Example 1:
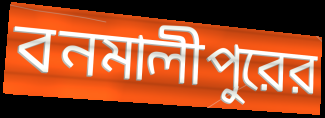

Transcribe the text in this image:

বনমালীপুরের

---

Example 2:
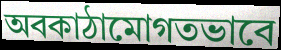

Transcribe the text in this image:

অবকাঠামোগতভাবে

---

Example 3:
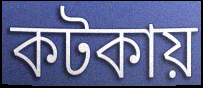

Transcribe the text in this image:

কটকায়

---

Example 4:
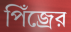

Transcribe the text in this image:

পিঁজ্রের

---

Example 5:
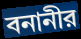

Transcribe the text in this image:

বনানীর